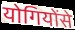
योगियोंसे